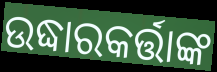
ଉଦ୍ଧାରକର୍ତ୍ତାଙ୍କ